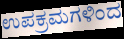
ಉಪಕ್ರಮಗಳಿಂದ